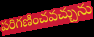
పరిగణించవచ్చును